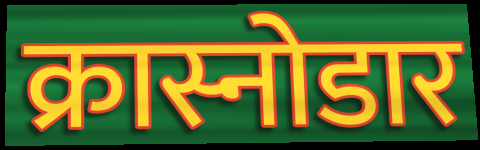
क्रास्नोडार